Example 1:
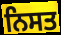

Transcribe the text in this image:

ਨਿਸਤ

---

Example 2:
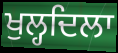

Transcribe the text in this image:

ਖੁਲ੍ਹਦਿਲਾ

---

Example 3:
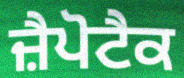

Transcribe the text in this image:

ਜ਼ੈਪੋਟੈਕ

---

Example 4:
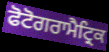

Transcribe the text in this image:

ਫੋਟੋਗਰਾਮੈਟ੍ਰਿਕ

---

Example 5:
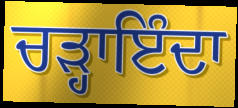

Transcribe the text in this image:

ਚੜ੍ਹਾਇੰਦਾ